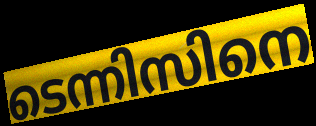
ടെന്നിസിനെ